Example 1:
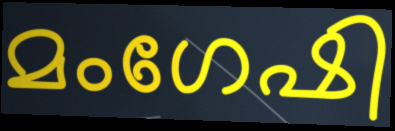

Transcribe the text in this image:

മംഗേഷി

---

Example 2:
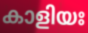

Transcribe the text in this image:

കാളിയഃ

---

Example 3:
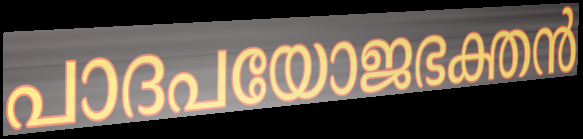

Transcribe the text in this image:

പാദപയോജഭക്തൻ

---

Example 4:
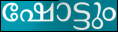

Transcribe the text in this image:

ഷോട്ടും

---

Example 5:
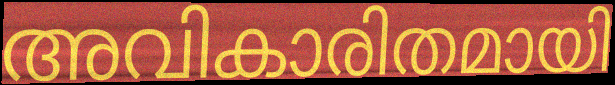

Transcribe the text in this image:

അവികാരിതമായി